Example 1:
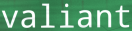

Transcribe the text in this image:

valiant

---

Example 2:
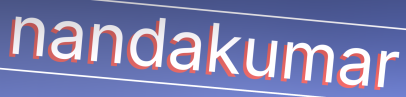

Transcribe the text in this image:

nandakumar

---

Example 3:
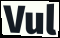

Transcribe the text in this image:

Vul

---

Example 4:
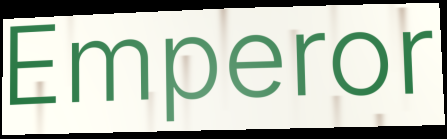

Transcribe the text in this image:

Emperor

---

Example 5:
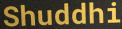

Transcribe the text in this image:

Shuddhi